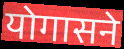
योगासने